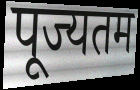
पूज्यतम